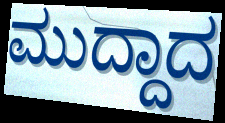
ಮುದ್ದಾದ